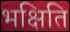
भक्षिति